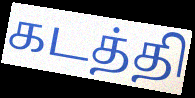
கடத்தி